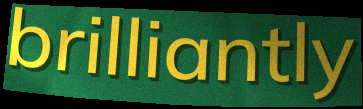
brilliantly